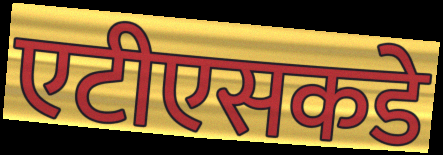
एटीएसकडे